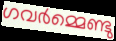
ഗവർമ്മെണ്ടു